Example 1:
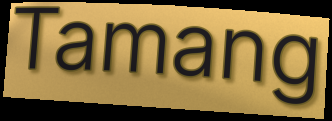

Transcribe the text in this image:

Tamang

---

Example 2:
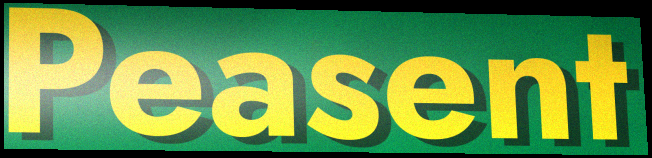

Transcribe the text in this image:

Peasent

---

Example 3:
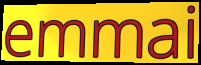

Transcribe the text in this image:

emmai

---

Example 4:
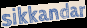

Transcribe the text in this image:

sikkandar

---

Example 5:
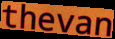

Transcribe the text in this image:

thevan